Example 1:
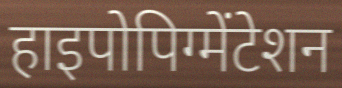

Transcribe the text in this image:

हाइपोपिग्मेंटेशन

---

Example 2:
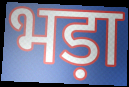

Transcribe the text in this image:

भड़ा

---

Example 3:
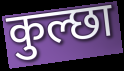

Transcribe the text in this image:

कुल्छा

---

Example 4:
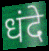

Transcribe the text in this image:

धंदे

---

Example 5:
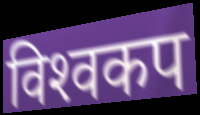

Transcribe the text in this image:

विश्‍वकप